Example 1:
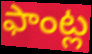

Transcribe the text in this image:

ఫాంట్ల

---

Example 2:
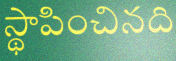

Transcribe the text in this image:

స్థాపించినది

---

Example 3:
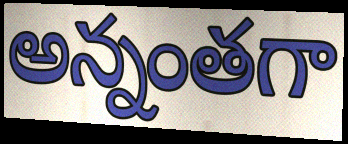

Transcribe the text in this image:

అన్నంతగా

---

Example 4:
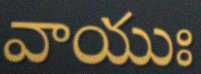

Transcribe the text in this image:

వాయుః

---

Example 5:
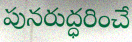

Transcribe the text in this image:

పునరుద్ధరించే